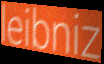
leibniz